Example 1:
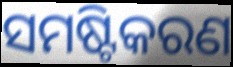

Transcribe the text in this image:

ସମଷ୍ଟିକରଣ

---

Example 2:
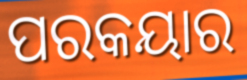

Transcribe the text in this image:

ପରକୟାର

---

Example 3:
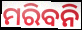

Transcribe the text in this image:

ମରିବନି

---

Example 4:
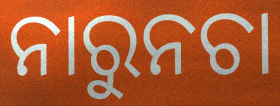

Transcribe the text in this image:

ନାରୁନଚା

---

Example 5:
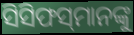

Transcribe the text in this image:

ସିସିଫସ୍‌ମାନଙ୍କୁ